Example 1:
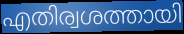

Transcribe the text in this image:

എതിര്വശത്തായി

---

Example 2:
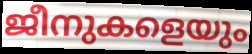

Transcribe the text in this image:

ജീനുകളെയും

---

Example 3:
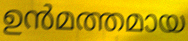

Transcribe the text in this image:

ഉൻമത്തമായ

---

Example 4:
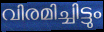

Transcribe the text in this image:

വിരമിച്ചിട്ടും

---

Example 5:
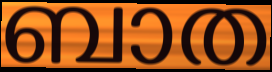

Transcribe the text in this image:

ബാത